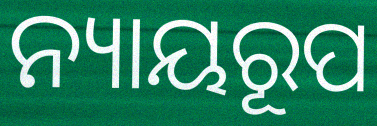
ନ୍ୟାୟରୂପ